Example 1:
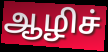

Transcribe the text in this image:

ஆழிச்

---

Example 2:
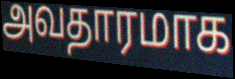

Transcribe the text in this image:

அவதாரமாக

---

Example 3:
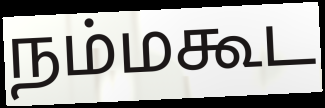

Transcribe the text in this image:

நம்மகூட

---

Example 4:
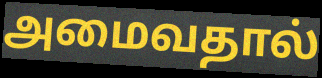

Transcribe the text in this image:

அமைவதால்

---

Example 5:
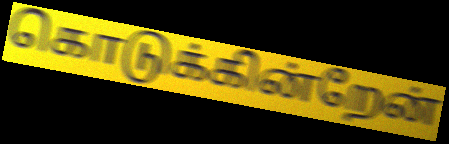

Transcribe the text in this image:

கொடுக்கின்றேன்